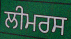
ਲੀਮਰਸ